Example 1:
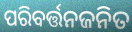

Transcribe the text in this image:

ପରିବର୍ତ୍ତନଜନିତ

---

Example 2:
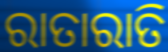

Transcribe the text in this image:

ରାତାରାତି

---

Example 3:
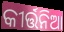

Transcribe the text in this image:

କୀର୍ତ୍ତନିଆ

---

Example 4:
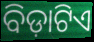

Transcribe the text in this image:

ବିଡ଼ାଟିଏ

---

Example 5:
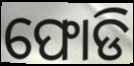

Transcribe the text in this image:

ଫୋଡି